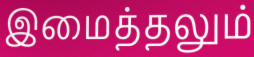
இமைத்தலும்